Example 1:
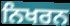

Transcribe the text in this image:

ਨਿਖਰਨ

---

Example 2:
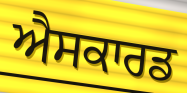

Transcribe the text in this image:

ਐਸਕਾਰਡ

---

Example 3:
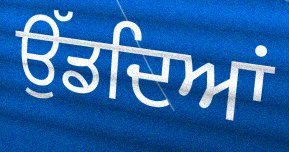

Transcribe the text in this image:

ਉੱਡਦਿਆਂ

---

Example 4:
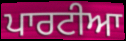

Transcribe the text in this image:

ਪਾਰਟੀਆ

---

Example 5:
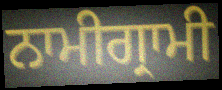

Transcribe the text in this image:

ਨਾਮੀਗ੍ਰਾਮੀ